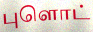
புளொட்